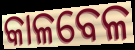
କାଳବେଳ